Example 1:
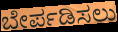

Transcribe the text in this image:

ಬೇರ್ಪಡಿಸಲು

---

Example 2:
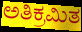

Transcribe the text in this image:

ಅತಿಕ್ರಮಿತ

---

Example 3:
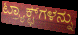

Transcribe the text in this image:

ಟ್ರ್ಯಾಕ್ಟ್‌ಗಳನ್ನು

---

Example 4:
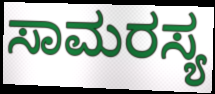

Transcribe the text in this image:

ಸಾಮರಸ್ಯ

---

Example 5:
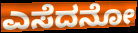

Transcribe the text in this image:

ಎಸೆದನೋ